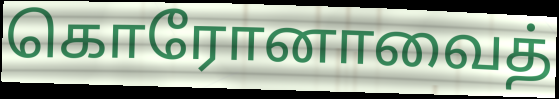
கொரோனாவைத்